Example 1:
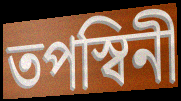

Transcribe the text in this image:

তপস্বিনী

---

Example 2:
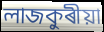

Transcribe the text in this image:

লাজকুৰীয়া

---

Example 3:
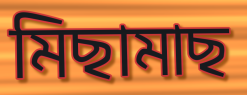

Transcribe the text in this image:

মিছামাছ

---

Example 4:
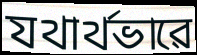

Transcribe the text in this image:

যথাৰ্থভাৱে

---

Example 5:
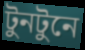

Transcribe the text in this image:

টুনটুনে